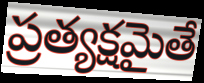
ప్రత్యక్షమైతే